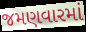
જમણવારમાં